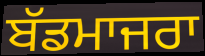
ਬੱਡਮਾਜਰਾ